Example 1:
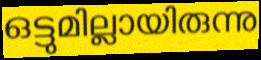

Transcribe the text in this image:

ഒട്ടുമില്ലായിരുന്നു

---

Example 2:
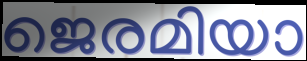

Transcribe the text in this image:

ജെരമിയാ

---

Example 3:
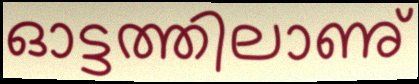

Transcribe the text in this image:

ഓട്ടത്തിലാണു്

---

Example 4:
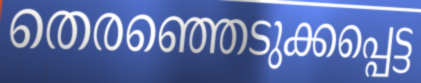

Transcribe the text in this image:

തെരഞ്ഞെടുക്കപ്പെട്ട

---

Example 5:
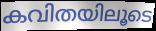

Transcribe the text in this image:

കവിതയിലൂടെ